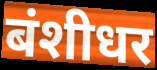
बंशीधर